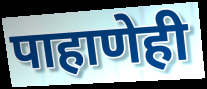
पाहाणेही